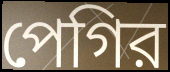
পেগির